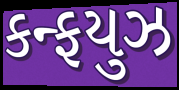
કન્ફયુઝ